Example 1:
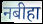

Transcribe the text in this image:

नबीहा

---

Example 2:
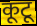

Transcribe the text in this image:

कूटू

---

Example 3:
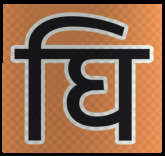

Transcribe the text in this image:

घि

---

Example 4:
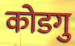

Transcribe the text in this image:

कोडगु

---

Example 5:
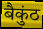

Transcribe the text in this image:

बैकुंठ